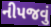
નીપજવું